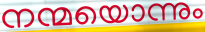
നന്മയൊന്നും